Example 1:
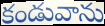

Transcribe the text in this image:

కండువాను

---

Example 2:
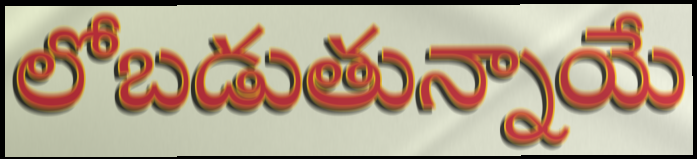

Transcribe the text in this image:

లోబడుతున్నాయే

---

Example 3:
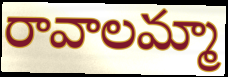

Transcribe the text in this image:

రావాలమ్మా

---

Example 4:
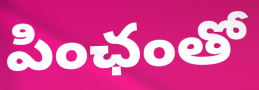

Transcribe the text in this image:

పింఛంతో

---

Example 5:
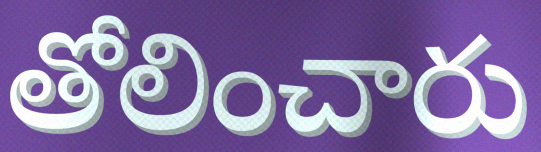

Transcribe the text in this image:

తోలించారు